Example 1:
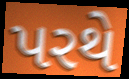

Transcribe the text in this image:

પરથે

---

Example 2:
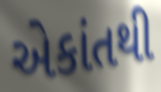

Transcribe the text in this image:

એકાંતથી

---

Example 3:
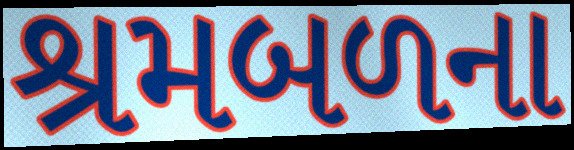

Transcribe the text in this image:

શ્રમબળના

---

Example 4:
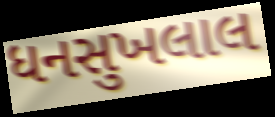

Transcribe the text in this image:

ધનસુખલાલ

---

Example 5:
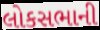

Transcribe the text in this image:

લોકસભાની